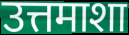
उत्तमाशा